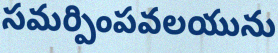
సమర్పింపవలయును